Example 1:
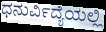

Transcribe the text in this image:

ಧನುರ್ವಿದ್ಯೆಯಲ್ಲಿ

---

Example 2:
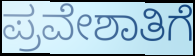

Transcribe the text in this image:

ಪ್ರವೇಶಾತಿಗೆ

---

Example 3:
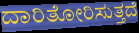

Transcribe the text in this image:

ದಾರಿತೋರಿಸುತ್ತದೆ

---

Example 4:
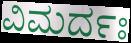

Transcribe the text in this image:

ವಿಮರ್ದಃ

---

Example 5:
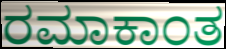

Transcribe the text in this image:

ರಮಾಕಾಂತ